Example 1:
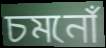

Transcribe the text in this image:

চমনোঁ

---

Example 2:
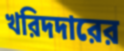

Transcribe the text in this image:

খরিদদারের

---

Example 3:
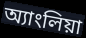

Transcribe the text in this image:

অ্যাংলিয়া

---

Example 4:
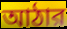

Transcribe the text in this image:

আঠার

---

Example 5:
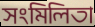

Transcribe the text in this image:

সংমিলিতা